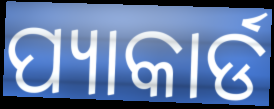
ପ୍ୟାକାର୍ଡ